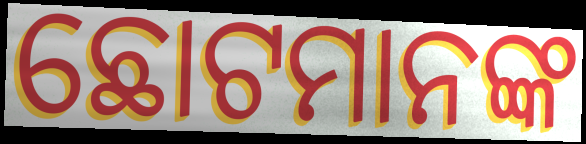
ଛୋଟମାନଙ୍କ